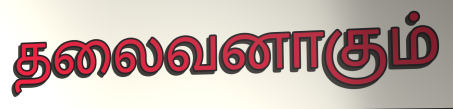
தலைவனாகும்